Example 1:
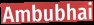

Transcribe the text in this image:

Ambubhai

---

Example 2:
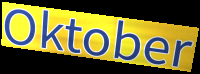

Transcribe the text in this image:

Oktober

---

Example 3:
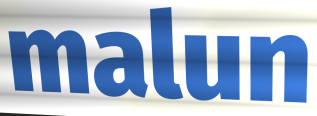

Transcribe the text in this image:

malun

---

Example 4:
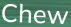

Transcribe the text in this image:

Chew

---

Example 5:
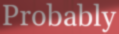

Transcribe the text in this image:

Probably